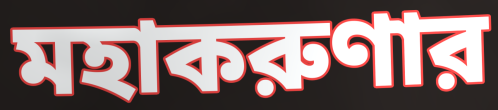
মহাকরুণার